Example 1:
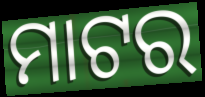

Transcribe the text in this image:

ମାଟର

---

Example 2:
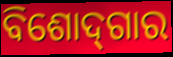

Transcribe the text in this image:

ବିଶୋଦ୍‌ଗାର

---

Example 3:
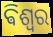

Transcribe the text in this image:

ଵିଶ୍ୱର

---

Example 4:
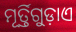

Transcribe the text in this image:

ମୂର୍ତ୍ତିଗୁଡ଼ାଏ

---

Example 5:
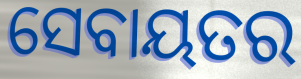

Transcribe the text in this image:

ସେବାୟତର